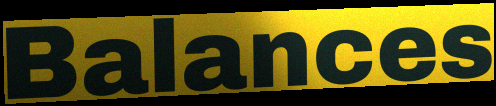
Balances